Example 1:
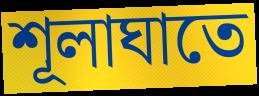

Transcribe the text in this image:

শূলাঘাতে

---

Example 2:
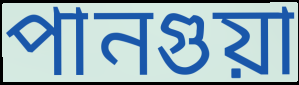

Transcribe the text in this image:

পানগুয়া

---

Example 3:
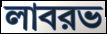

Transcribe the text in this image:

লাবরভ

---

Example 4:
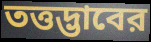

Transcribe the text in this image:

তত্তদ্ভাবের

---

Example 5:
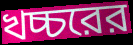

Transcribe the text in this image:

খচ্চরের